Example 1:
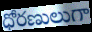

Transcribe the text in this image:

ధోరణులుగా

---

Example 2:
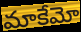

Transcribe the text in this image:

మాకేమో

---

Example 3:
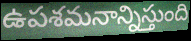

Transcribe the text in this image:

ఉపశమనాన్నిస్తుంది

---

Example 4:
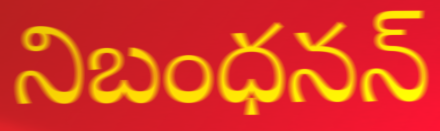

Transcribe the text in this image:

నిబంధనన్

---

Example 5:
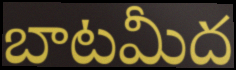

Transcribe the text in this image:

బాటమీద